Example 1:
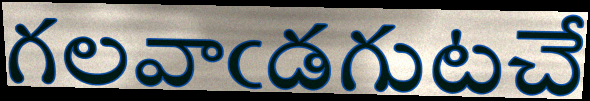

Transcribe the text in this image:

గలవాఁడగుటచే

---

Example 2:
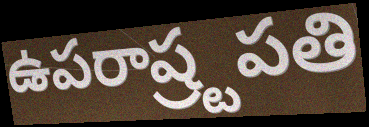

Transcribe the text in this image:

ఉపరాష్ర్టపతి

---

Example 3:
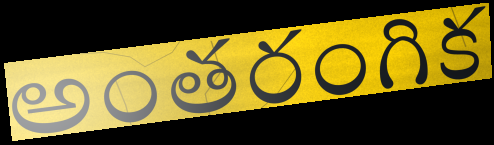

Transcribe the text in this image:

అంతరంగిక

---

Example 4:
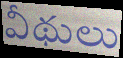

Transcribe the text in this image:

వీథులు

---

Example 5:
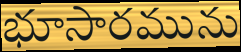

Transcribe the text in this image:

భూసారమును